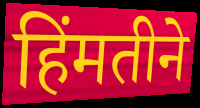
हिंमतीने